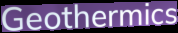
Geothermics